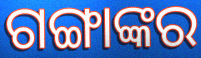
ଗଙ୍ଗାଙ୍କର